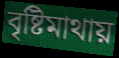
বৃষ্টিমাথায়